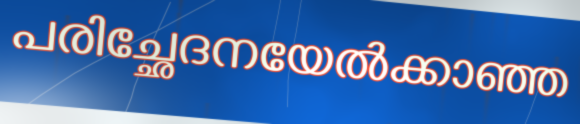
പരിച്ഛേദനയേൽക്കാഞ്ഞ